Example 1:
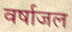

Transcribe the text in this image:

वर्षाजल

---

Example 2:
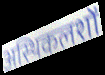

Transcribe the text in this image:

अस्थिकलशों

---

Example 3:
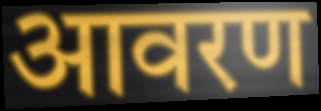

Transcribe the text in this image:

आवरण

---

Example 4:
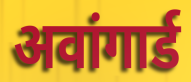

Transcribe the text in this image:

अवांगार्ड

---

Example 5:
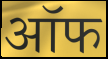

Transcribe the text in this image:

ऑफ